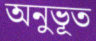
অনুভূত